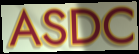
ASDC